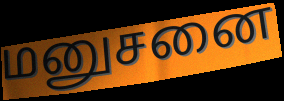
மனுசனை